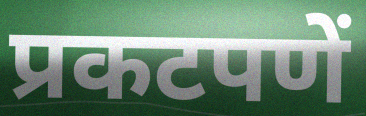
प्रकटपणें